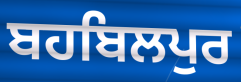
ਬਹਬਿਲਪੁਰ